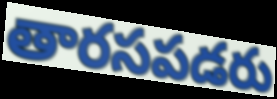
తారసపడరు